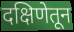
दक्षिणेतून